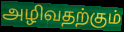
அழிவதற்கும்